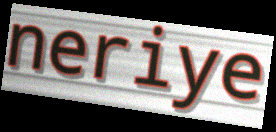
neriye